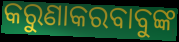
କରୁଣାକରବାବୁଙ୍କ